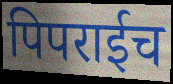
पिपराईच